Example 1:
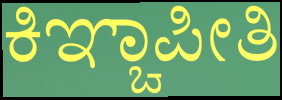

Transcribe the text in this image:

ಕಿಞ್ಚಾಪೀತಿ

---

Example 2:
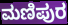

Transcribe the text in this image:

ಮಣಿಪುರ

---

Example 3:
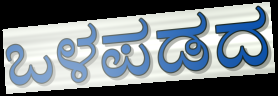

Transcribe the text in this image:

ಒಳಪಡದ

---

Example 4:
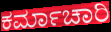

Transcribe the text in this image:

ಕರ್ಮಾಚಾರಿ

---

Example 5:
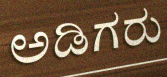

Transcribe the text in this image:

ಅಡಿಗರು